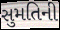
સુમતિની